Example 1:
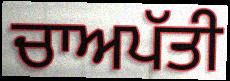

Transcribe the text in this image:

ਚਾਅਪੱਤੀ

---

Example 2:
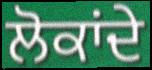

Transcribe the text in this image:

ਲੋਕਾਂਦੇ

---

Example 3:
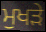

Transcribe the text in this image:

ਮੁਖੜੇ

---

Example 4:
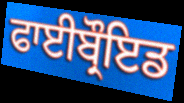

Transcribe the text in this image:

ਫਾਈਬ੍ਰੌਇਡ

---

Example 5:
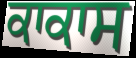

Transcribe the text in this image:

ਕਾਕਾਸ